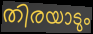
തിരയാടും